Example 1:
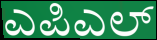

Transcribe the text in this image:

ಎಪಿಎಲ್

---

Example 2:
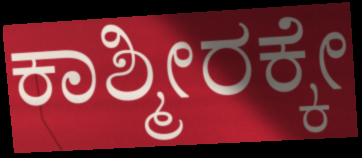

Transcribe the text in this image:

ಕಾಶ್ಮೀರಕ್ಕೇ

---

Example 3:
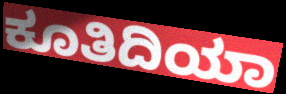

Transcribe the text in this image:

ಕೂತಿದಿಯಾ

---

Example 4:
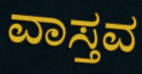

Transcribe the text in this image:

ವಾಸ್ತವ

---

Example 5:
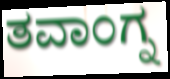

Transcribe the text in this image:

ತವಾಂಗ್ನ